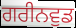
ਗਰੀਨਵੁਡ